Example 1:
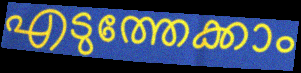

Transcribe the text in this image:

എടുത്തേക്കാം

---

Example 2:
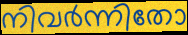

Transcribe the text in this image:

നിവർന്നിതോ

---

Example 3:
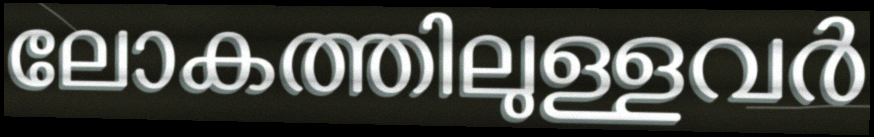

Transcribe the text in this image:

ലോകത്തിലുള്ളവർ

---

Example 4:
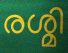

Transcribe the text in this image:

രശ്മി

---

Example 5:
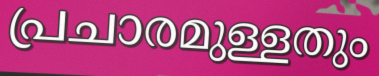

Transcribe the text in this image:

പ്രചാരമുള്ളതും